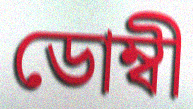
ডোম্বী